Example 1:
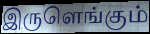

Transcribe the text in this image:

இருளெங்கும்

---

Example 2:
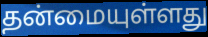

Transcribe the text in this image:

தன்மையுள்ளது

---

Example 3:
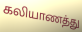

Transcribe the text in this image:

கலியாணத்து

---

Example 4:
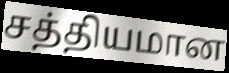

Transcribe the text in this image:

சத்தியமான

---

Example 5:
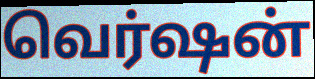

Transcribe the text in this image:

வெர்ஷன்